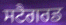
ਸਟੈਗਰਡ